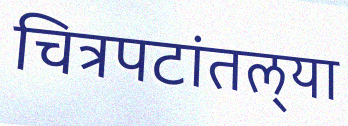
चित्रपटांतल्या